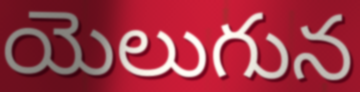
యెలుగున